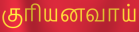
குரியனவாய்